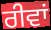
ਰੀਵਾਂ